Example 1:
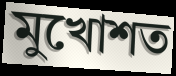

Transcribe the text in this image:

মুখোশত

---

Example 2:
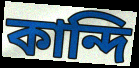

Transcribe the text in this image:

কান্দি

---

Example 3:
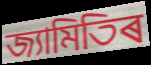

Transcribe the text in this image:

জ্যামিতিৰ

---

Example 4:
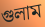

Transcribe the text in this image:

গুলাম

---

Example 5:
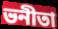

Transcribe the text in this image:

ভনীতা